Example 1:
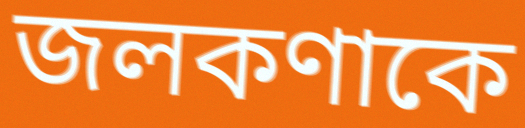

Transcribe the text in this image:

জলকণাকে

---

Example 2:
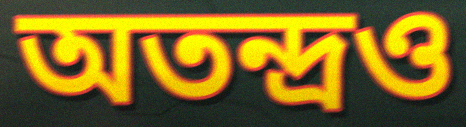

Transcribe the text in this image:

অতন্দ্রও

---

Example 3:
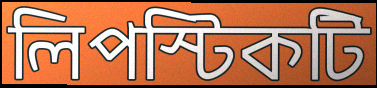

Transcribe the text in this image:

লিপস্টিকটি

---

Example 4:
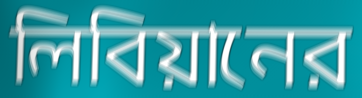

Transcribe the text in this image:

লিবিয়ানের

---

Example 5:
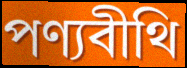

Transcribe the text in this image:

পণ্যবীথি